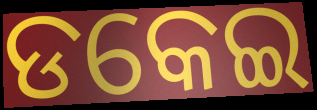
ଡକେଇ